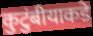
कुटुंबीयाकडे